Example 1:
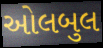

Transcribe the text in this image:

ઓલબુલ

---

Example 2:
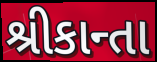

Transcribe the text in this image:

શ્રીકાન્તા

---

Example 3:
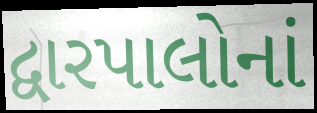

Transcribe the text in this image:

દ્વારપાલોનાં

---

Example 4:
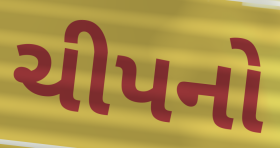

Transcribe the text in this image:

ચીપનો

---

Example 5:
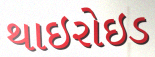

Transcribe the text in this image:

થાઇરોઇડ